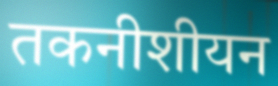
तकनीशीयन